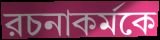
রচনাকর্মকে